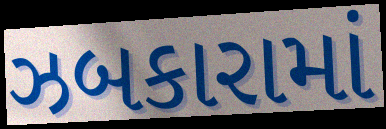
ઝબકારામાં